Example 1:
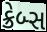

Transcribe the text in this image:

ક્રેબ્સ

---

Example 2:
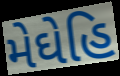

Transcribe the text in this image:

મેઘેહિ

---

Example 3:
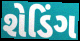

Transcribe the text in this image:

શેડિંગ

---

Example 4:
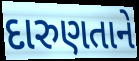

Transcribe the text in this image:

દારુણતાને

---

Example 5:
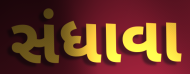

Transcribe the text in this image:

સંધાવા